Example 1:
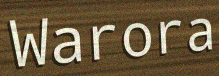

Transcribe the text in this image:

Warora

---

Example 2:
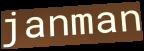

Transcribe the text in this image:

janman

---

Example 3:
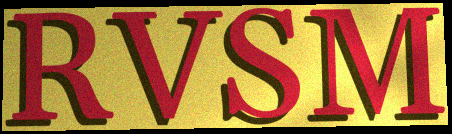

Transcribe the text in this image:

RVSM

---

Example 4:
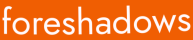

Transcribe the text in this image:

foreshadows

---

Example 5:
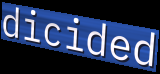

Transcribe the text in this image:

dicided